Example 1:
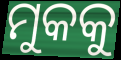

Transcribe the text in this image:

ମୁକକୁ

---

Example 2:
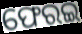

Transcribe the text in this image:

ଫେରଇ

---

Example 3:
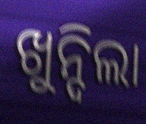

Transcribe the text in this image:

ଖୁନ୍ଦିଲା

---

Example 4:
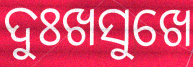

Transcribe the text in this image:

ଦୁଃଖସୁଖେ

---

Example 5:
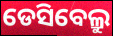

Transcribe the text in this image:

ଡେସିବେଲ୍ରୁ